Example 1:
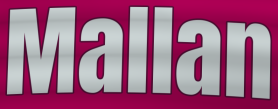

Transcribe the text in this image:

Mallan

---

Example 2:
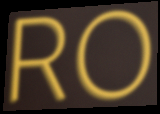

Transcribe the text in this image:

RO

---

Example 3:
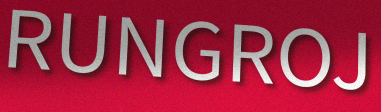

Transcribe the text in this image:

RUNGROJ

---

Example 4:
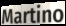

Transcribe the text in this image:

Martino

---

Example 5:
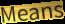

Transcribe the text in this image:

Means